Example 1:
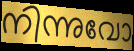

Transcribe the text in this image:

നിന്നുവോ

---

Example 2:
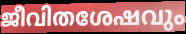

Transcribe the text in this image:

ജീവിതശേഷവും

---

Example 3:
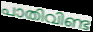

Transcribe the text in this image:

പാതിവിണ്ട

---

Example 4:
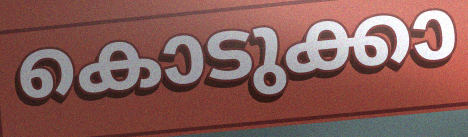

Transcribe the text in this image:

കൊടുക്കാ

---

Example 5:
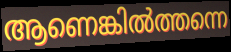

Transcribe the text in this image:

ആണെങ്കിൽത്തന്നെ